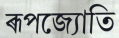
ৰূপজ্যোতি